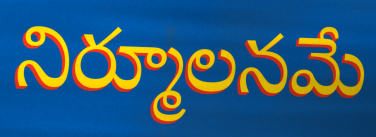
నిర్మూలనమే